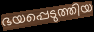
ഭയപ്പെടുത്തിയ